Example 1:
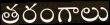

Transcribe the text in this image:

తరంగాలు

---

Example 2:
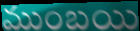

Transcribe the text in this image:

ముంబయి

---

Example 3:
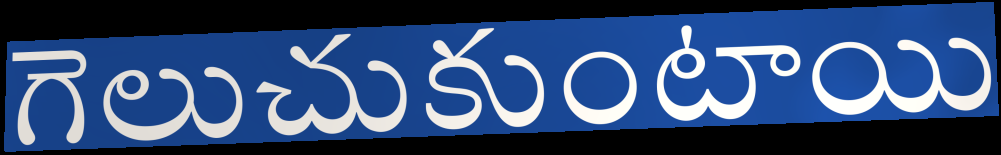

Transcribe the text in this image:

గెలుచుకుంటాయి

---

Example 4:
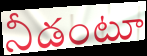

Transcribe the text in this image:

నీడంటూ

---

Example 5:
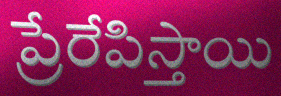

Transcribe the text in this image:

ప్రేరేపిస్తాయి